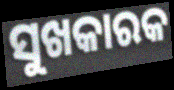
ସୁଖକାରକ